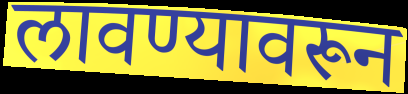
लावण्यावरून